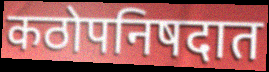
कठोपनिषदात